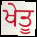
ਖੇਤੂ